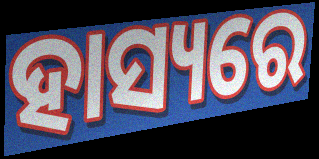
ହାସ୍ୟରେ